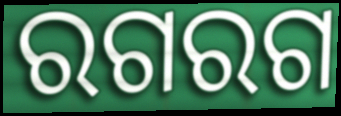
ରଗରଗ